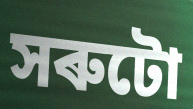
সৰুটো